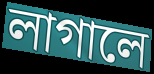
লাগালে